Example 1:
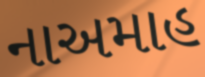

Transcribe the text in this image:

નાઅમાહ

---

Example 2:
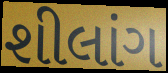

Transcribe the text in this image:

શીલાંગ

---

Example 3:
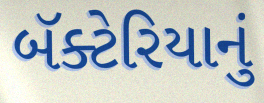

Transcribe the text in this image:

બૅક્ટેરિયાનું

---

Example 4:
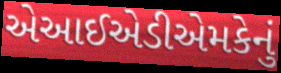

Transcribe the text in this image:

એઆઈએડીએમકેનું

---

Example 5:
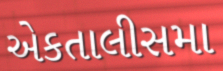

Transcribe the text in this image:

એકતાલીસમા